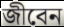
জীবেন